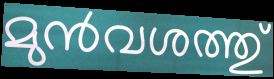
മുൻവശത്തു്